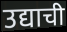
उद्याची